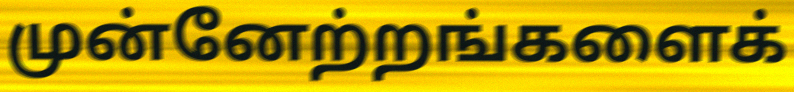
முன்னேற்றங்களைக்